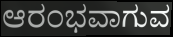
ಆರಂಭವಾಗುವ